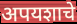
अपयशाचे